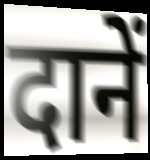
दानें